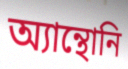
অ্যান্থোনি